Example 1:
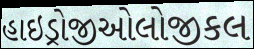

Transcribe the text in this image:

હાઇડ્રોજીઓલોજીકલ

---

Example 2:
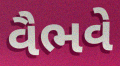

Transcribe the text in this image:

વૈભવે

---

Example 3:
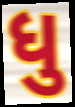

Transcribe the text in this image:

ધુ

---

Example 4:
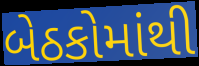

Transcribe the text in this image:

બેઠકોમાંથી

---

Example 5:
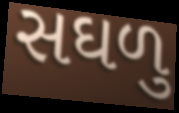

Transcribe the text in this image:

સઘળુ